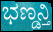
ಭಣ್ಡನ್ತಿ